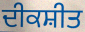
ਦੀਕਸ਼ੀਤ